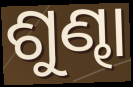
ଶୁଣ୍ଢା